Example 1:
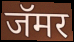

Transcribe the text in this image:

जॅमर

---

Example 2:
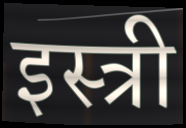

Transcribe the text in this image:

इस्त्री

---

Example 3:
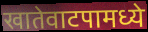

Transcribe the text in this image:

खातेवाटपामध्ये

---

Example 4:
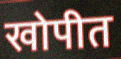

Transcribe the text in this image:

खोपीत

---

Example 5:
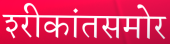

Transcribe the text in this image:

श्रीकांतसमोर